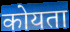
कोयता